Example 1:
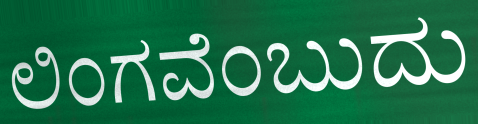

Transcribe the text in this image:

ಲಿಂಗವೆಂಬುದು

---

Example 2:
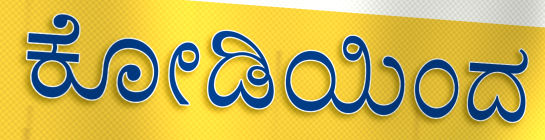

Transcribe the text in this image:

ಕೋಡಿಯಿಂದ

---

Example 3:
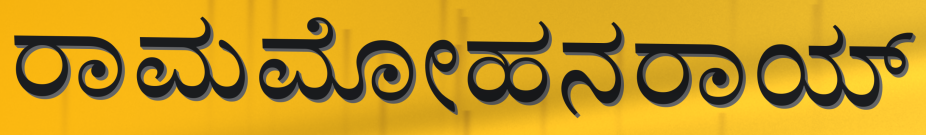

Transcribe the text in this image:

ರಾಮಮೋಹನರಾಯ್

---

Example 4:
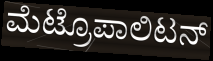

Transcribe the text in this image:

ಮೆಟ್ರೊಪಾಲಿಟನ್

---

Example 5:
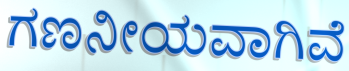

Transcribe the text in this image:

ಗಣನೀಯವಾಗಿವೆ